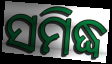
ସମିଦ୍ଧ